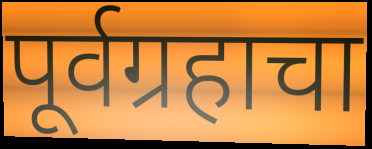
पूर्वग्रहाचा